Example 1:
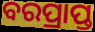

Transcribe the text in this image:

ବରପ୍ରାପ୍ତ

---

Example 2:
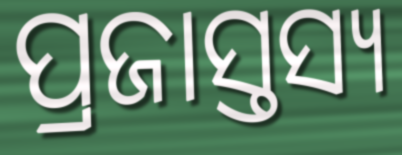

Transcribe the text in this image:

ପ୍ରଜାସ୍ତସ୍ୟ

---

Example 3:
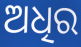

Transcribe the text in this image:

ଅଧିର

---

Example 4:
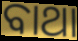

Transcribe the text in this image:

ବାଥା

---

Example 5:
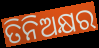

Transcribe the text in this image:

ତିନିଅକ୍ଷର